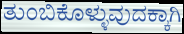
ತುಂಬಿಕೊಳ್ಳುವುದಕ್ಕಾಗಿ